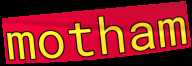
motham